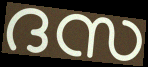
ദസ